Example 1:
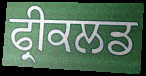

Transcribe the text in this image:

ਫ੍ਰੀਕਲਡ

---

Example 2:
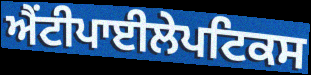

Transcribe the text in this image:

ਐਂਟੀਪਾਈਲੇਪਟਿਕਸ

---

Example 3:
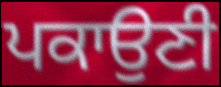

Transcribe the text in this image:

ਪਕਾਉਣੀ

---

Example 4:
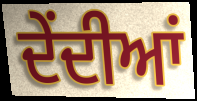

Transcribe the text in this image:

ਦੇਂਦੀਆਂ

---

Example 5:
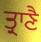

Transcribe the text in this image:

ਤ੍ਰਾਣੈ